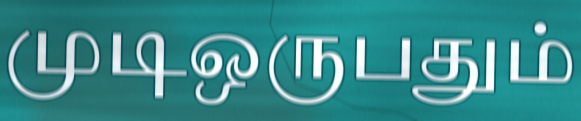
முடிஒருபதும்